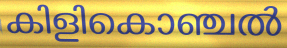
കിളികൊഞ്ചൽ